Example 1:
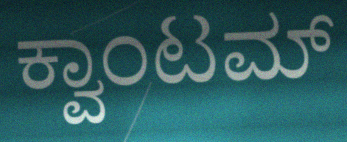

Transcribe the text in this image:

ಕ್ವಾಂಟಮ್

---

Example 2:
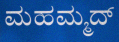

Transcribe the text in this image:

ಮಹಮ್ಮದ್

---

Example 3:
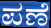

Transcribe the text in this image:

ಪಣೆ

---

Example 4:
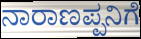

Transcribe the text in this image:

ನಾರಾಣಪ್ಪನಿಗೆ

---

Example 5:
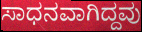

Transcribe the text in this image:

ಸಾಧನವಾಗಿದ್ದವು